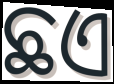
ଛଏ